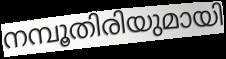
നമ്പൂതിരിയുമായി